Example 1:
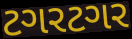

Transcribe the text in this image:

ટગરટગર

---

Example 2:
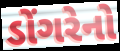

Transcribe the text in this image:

ડોંગરેનો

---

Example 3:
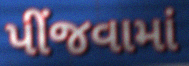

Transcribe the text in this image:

પીંજવામાં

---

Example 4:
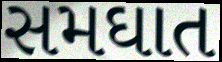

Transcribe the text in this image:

સમઘાત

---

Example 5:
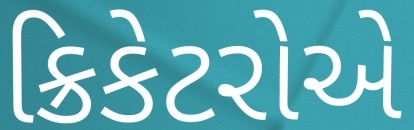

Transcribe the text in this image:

ક્રિકેટરોએ